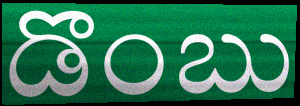
డొంబు